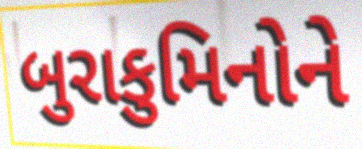
બુરાકુમિનોને